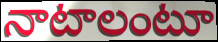
నాటాలంటూ